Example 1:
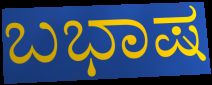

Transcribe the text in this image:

ಬಭಾಷ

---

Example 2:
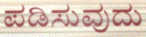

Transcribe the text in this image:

ಪಡಿಸುವುದು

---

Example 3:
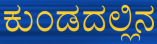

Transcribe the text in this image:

ಕುಂಡದಲ್ಲಿನ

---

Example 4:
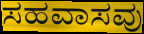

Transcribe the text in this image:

ಸಹವಾಸವು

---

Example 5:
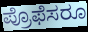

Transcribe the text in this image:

ಪ್ರೊಫೆಸರೂ